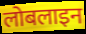
लोबलाइन